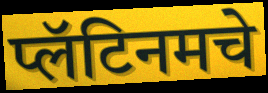
प्लॅटिनमचे